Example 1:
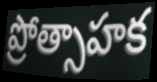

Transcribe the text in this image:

ప్రోత్సాహక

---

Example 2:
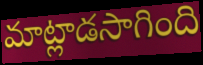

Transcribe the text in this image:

మాట్లాడసాగింది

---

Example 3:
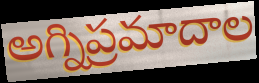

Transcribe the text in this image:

అగ్నిప్రమాదాల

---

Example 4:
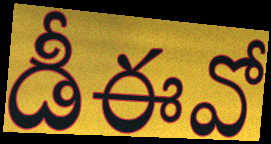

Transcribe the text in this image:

డీఈవో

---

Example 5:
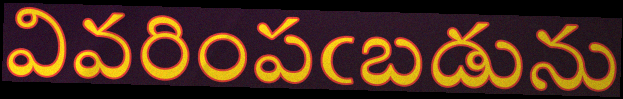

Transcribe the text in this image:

వివరింపఁబడును